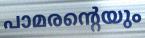
പാമരന്റെയും